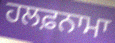
ਹਲਫ਼ਨਾਮਾ